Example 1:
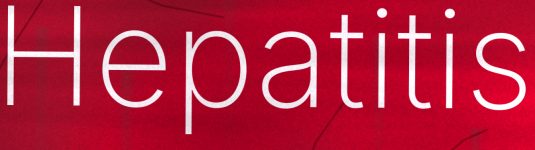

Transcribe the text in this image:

Hepatitis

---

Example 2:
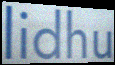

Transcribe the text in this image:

lidhu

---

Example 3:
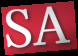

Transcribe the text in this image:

SA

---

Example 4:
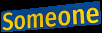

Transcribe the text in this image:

Someone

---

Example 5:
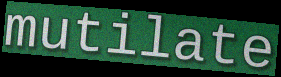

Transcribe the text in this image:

mutilate